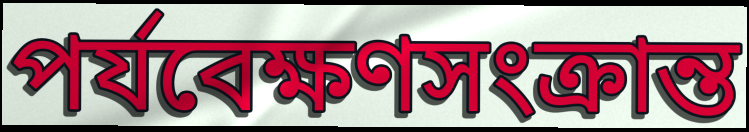
পর্যবেক্ষণসংক্রান্ত